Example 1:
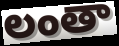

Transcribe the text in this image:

లంతా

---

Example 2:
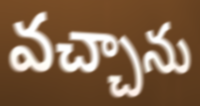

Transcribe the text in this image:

వచ్చాను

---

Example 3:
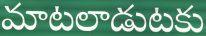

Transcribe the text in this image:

మాటలాడుటకు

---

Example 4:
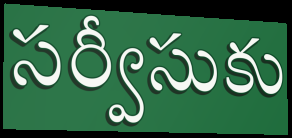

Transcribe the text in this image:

సర్వీసుకు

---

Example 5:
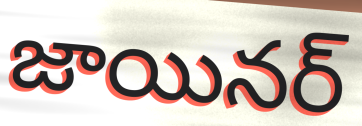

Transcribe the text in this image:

జాయినర్